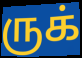
ருக்